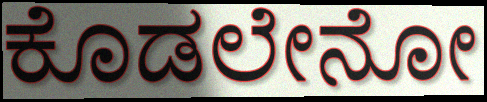
ಕೊಡಲೇನೋ